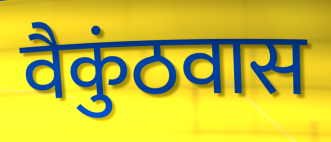
वैकुंठवास